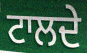
ਟਾਲਦੇ